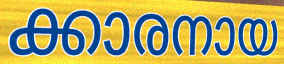
ക്കാരനായ